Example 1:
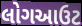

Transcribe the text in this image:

લોગઆઉટ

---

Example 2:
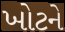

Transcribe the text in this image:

ખોટને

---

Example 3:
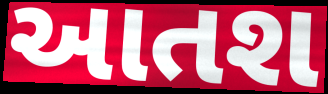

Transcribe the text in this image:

આતશ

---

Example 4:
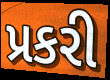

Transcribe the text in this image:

પ્રકરી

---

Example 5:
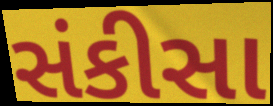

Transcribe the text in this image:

સંકીસા